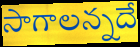
సాగాలన్నదే